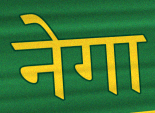
नेगा